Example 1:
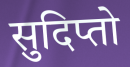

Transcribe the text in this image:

सुदिप्तो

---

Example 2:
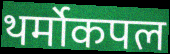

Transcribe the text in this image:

थर्मोकपल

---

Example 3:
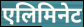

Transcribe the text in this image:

एलिमिनेट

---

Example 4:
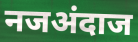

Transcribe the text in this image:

नजअंदाज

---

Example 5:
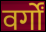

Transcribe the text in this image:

वर्गों